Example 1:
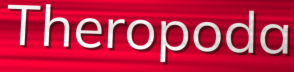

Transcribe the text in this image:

Theropoda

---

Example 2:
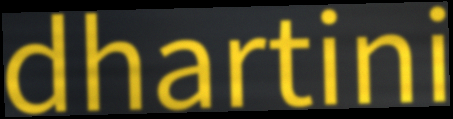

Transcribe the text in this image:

dhartini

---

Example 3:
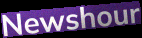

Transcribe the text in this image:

Newshour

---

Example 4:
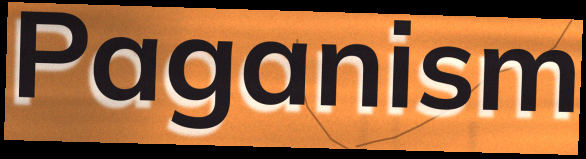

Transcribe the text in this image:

Paganism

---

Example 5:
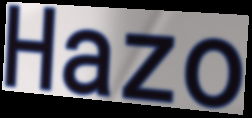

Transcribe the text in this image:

Hazo